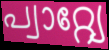
പ്വാറ്റ്യേ